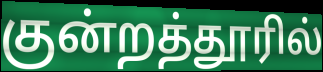
குன்றத்தூரில்